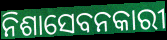
ନିଶାସେବନକାରୀ